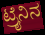
ಟ್ರೈನಿನ